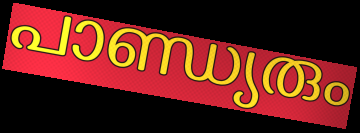
പാണ്ഡ്യരും